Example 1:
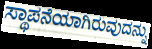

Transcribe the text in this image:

ಸ್ಥಾಪನೆಯಾಗಿರುವುದನ್ನು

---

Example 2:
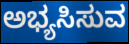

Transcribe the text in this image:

ಅಭ್ಯಸಿಸುವ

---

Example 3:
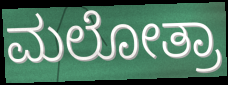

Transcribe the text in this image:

ಮಲೋತ್ರಾ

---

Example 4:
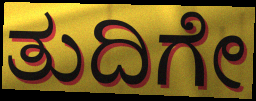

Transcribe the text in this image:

ತುದಿಗೇ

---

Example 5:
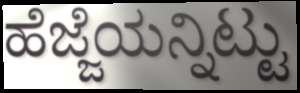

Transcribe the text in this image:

ಹೆಜ್ಜೆಯನ್ನಿಟ್ಟು